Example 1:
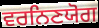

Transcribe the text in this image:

ਵਰਨਿਣਯੋਗ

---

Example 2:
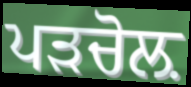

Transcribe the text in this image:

ਪੜਚੋਲ਼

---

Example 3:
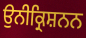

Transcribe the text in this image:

ਉਨੀਕ੍ਰਿਸ਼ਨਨ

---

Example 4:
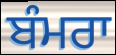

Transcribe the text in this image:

ਬੰਮਰਾ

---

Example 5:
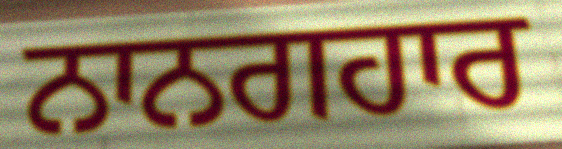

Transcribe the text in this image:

ਨਾਨਗਹਾਰ